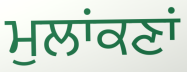
ਮੁਲਾਂਕਣਾਂ